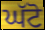
ਘੱਟੋ